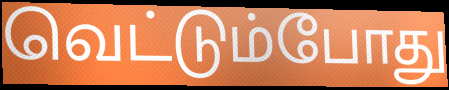
வெட்டும்போது